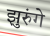
झुरुंगे